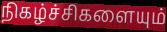
நிகழ்ச்சிகளையும்